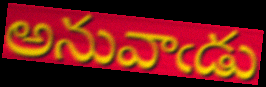
అనువాఁడు